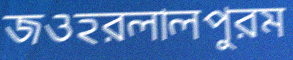
জওহরলালপুরম